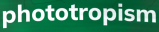
phototropism